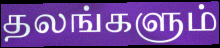
தலங்களும்